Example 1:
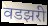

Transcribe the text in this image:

वडझरी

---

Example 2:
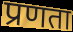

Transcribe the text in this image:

प्रणता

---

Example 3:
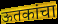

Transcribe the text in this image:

ऊतकांचा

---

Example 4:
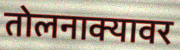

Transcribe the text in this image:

तोलनाक्यावर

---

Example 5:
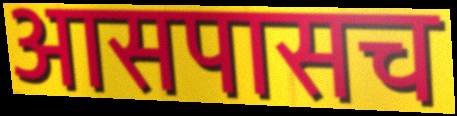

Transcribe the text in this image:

आसपासच